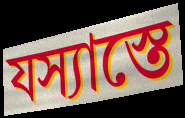
যস্যাস্তে